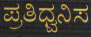
ಪ್ರತಿಧ್ವನಿಸ